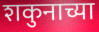
शकुनाच्या